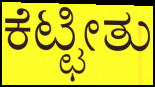
ಕೆಟ್ಟೀತು